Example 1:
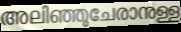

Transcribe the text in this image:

അലിഞ്ഞുചേരാനുള്ള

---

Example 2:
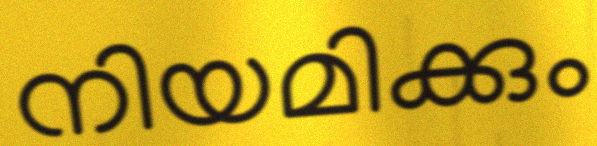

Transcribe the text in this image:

നിയമിക്കും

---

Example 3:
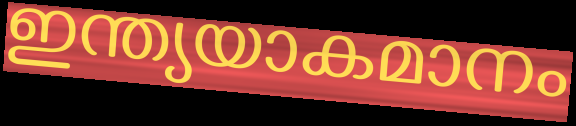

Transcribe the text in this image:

ഇന്ത്യയാകമാനം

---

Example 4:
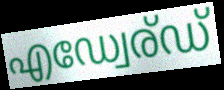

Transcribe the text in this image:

എഡ്വേര്ഡ്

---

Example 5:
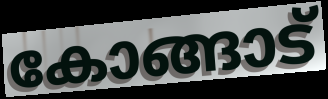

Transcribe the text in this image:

കോങ്ങാട്